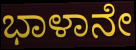
ಭಾಳಾನೇ